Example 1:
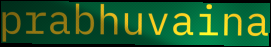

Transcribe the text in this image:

prabhuvaina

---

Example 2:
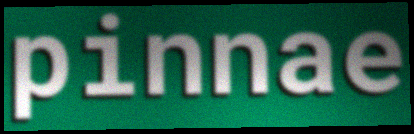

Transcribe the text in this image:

pinnae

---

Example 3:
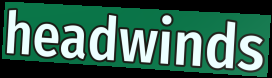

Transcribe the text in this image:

headwinds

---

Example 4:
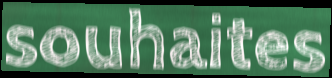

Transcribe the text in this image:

souhaites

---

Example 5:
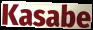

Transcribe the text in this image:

Kasabe